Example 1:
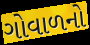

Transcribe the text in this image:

ગોવાળનો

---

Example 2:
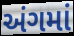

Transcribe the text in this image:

અંગમાં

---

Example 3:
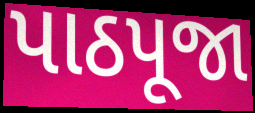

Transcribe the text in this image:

પાઠપૂજા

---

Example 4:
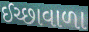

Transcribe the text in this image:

ઈચ્છાવાળા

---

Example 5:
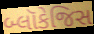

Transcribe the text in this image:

બ્લૉકેજિસ